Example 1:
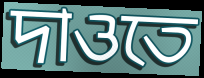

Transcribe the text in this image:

দাওতে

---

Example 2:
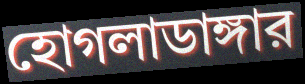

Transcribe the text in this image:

হোগলাডাঙ্গার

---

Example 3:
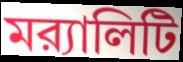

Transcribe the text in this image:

মর‍্যালিটি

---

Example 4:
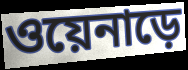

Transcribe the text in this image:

ওয়েনাড়ে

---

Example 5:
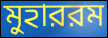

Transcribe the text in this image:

মুহাররম